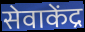
सेवाकेंद्र